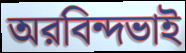
অরবিন্দভাই